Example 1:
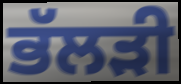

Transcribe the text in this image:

ਭੱਲੜੀ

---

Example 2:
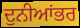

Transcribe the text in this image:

ਦੁਨੀਆਂਭਰ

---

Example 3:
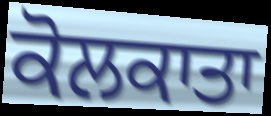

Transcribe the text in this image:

ਕੋਲਕਾਤਾ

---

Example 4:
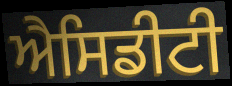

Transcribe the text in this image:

ਐਸਿਡੀਟੀ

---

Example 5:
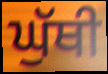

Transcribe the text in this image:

ਘੁੱਥੀ